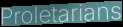
Proletarians